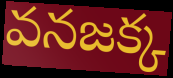
వనజక్క